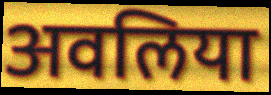
अवलिया